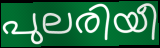
പുലരിയീ